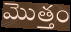
మొత్తం